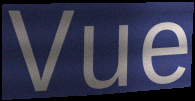
Vue